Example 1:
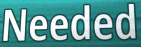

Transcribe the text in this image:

Needed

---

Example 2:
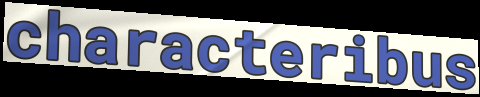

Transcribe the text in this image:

characteribus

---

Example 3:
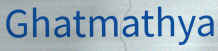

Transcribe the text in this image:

Ghatmathya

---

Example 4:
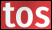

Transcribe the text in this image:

tos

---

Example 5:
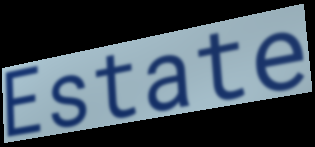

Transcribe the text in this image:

Estate